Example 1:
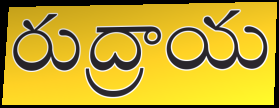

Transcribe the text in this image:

రుద్రాయ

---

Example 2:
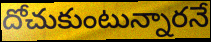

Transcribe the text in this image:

దోచుకుంటున్నారనే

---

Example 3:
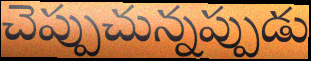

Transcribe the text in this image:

చెప్పుచున్నప్పుడు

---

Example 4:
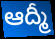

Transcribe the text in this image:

ఆద్మీ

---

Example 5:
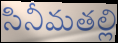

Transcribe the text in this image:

సినీమతల్లి